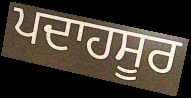
ਪਦਾਹਸੂਰ